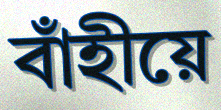
বাঁহীয়ে